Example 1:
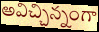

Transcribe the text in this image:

అవిచ్చిన్నంగా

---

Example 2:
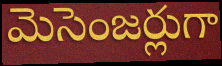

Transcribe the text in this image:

మెసెంజర్లుగా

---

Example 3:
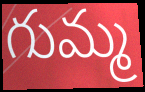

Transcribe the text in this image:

గుమ్మ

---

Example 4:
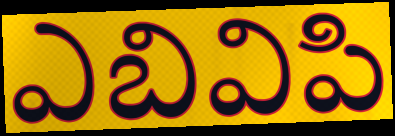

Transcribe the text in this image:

ఎబివిపి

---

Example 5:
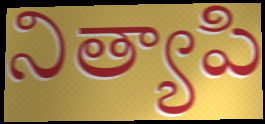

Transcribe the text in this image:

నిత్యాపి